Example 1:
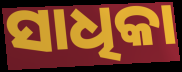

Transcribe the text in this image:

ସାଧିକା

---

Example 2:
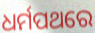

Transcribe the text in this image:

ଧର୍ମପଥରେ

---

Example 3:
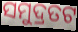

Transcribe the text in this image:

ସମୁଦ୍ରତଟ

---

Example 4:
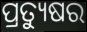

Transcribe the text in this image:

ପ୍ରତ୍ୟୁଷର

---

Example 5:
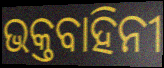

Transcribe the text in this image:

ଭକ୍ତବାହିନୀ